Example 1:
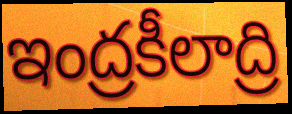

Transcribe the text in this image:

ఇంద్రకీలాద్రి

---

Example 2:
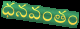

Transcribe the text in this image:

ధనవంతం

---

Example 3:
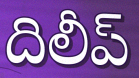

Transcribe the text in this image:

దిలీప్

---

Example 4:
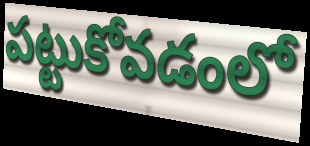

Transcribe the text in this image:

పట్టుకోవడంలో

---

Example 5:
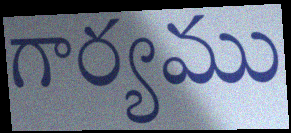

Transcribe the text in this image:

గార్యము